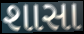
શાસા